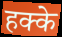
हक्के